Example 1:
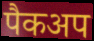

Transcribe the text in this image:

पैकअप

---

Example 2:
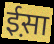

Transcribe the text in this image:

ई़सा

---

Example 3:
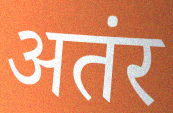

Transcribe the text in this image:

अतंर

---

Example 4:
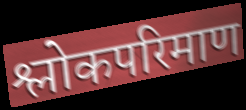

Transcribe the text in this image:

श्लोकपरिमाण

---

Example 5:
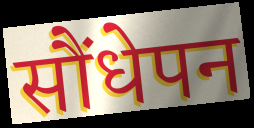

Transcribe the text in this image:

सौंधेपन